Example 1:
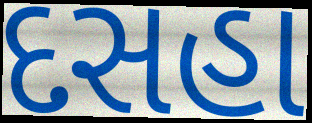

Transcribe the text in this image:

દસહા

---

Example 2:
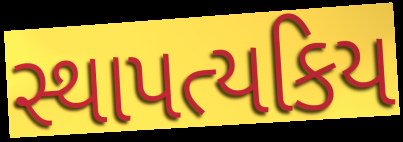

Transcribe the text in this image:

સ્થાપત્યકિય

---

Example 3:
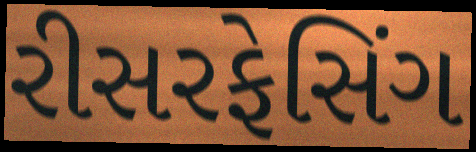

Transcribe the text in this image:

રીસરફેસિંગ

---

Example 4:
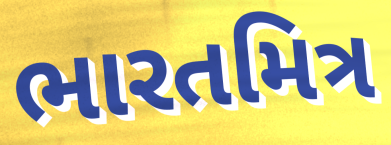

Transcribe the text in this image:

ભારતમિત્ર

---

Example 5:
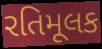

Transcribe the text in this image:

રતિમૂલક